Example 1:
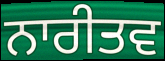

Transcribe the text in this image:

ਨਾਰੀਤਵ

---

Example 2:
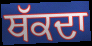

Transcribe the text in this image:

ਥੱਕਦਾ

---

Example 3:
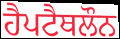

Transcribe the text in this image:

ਹੈਪਟੈਥਲੌਨ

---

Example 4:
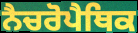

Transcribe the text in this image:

ਨੈਚਰੋਪੈਥਿਕ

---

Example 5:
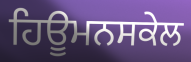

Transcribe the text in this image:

ਹਿਊਮਨਸਕੇਲ